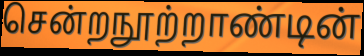
சென்றநூற்றாண்டின்